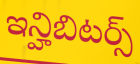
ఇన్హిబిటర్స్